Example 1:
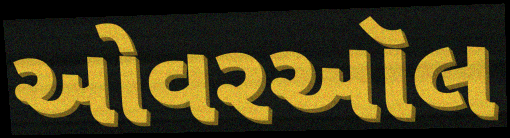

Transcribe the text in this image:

ઓવરઑલ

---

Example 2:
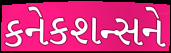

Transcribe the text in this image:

કનેકશન્સને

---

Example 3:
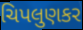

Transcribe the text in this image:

ચિપલુણકર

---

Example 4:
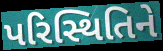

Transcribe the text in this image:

પરિસ્થિતિને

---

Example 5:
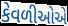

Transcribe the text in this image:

કેવળીઓએ